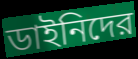
ডাইনিদের